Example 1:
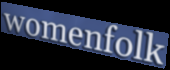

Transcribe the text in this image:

womenfolk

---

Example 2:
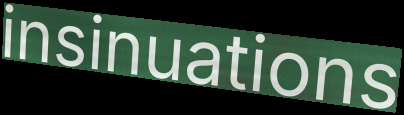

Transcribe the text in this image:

insinuations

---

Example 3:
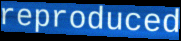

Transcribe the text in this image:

reproduced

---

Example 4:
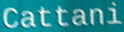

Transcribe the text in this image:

Cattani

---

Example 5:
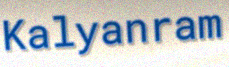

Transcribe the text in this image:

Kalyanram